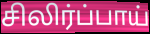
சிலிர்ப்பாய்